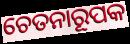
ଚେତନାରୂପକ